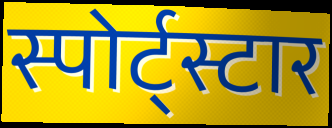
स्पोर्ट्स्टार